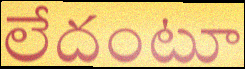
లేదంటూ